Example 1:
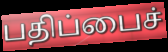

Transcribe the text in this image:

பதிப்பைச்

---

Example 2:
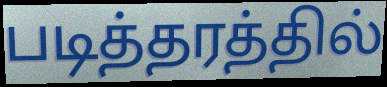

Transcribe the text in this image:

படித்தரத்தில்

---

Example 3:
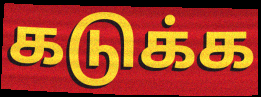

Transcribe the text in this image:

கடுக்க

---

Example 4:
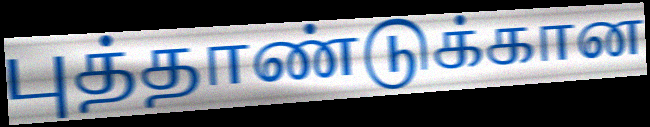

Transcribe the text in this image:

புத்தாண்டுக்கான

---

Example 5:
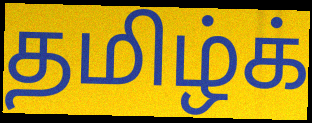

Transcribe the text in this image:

தமிழ்க்